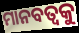
ମାନବତ୍ବକୁ